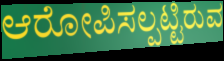
ಆರೋಪಿಸಲ್ಪಟ್ಟಿರುವ